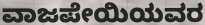
ವಾಜಪೇಯಿಯವರ